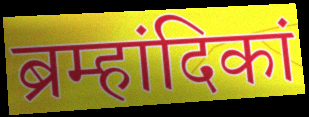
ब्रम्हांदिकां